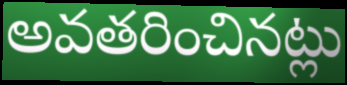
అవతరించినట్లు